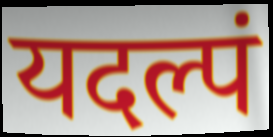
यदल्पं